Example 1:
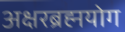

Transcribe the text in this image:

अक्षरब्रह्मयोग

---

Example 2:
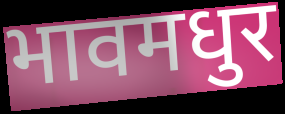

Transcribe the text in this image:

भावमधुर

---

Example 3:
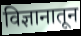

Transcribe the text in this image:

विज्ञानातून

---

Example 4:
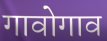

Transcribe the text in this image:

गावोगाव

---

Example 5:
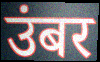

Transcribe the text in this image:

उंबर